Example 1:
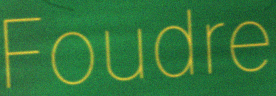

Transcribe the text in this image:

Foudre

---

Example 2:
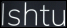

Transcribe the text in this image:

Ishtu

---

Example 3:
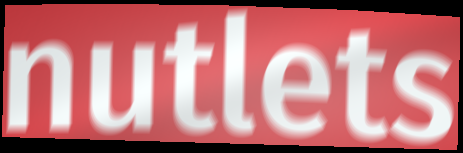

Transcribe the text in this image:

nutlets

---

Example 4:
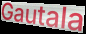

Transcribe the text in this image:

Gautala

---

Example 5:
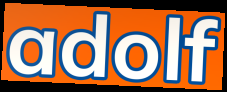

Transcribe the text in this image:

adolf